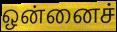
ஒன்னைச்